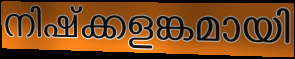
നിഷ്ക്കളങ്കമായി